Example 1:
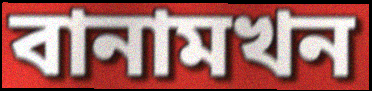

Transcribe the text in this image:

বানামখন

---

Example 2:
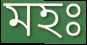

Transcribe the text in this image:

মহঃ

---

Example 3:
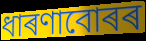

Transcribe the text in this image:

ধাৰণাবোৰৰ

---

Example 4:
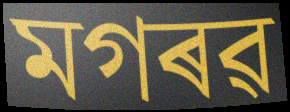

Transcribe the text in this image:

মগৰৱ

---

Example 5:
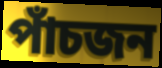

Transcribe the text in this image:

পাঁচজন